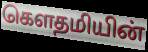
கெளதமியின்